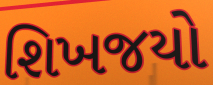
શિખજયો